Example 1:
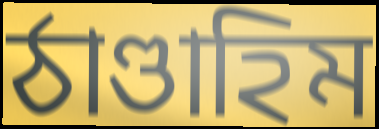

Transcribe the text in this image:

ঠাণ্ডাহিম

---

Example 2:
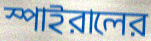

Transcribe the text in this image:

স্পাইরালের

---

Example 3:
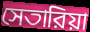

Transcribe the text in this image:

সেতারিয়া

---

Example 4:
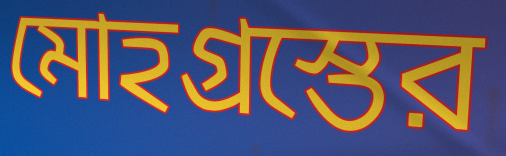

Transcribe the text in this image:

মোহগ্রস্তের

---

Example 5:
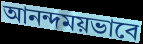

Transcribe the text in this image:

আনন্দময়ভাবে